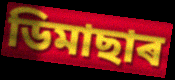
ডিমাছাৰ